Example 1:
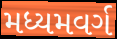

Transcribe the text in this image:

મધ્યમવર્ગ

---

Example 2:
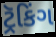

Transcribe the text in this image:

ટ્રૅકિંગ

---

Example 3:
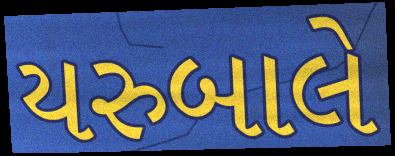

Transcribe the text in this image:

યરુબાલે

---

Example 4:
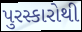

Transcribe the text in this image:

પુરસ્કારોથી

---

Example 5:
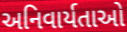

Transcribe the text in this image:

અનિવાર્યતાઓ